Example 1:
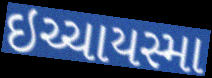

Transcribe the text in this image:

ઇચ્ચાયસ્મા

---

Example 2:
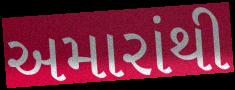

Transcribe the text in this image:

અમારાંથી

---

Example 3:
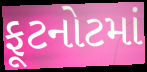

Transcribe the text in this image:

ફૂટનોટમાં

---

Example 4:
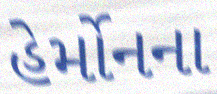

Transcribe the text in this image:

હેર્મોનના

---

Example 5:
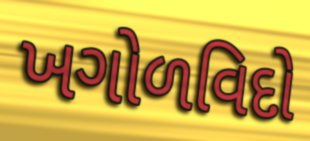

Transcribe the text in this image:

ખગોળવિદો